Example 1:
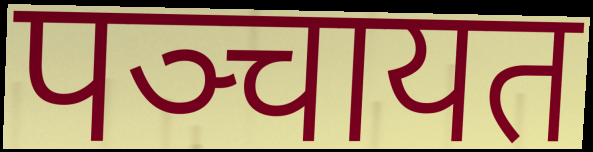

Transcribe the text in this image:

पञ्चायत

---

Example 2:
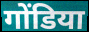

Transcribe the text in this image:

गोंडिया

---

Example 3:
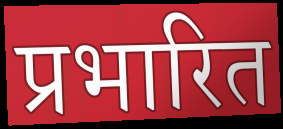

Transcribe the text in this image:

प्रभारित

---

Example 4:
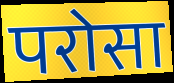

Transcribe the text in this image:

परोसा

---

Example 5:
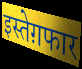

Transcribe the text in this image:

इस्तेग़फार